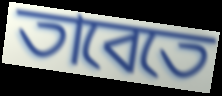
তাবেতে